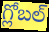
గ్లోబల్